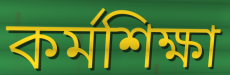
কর্মশিক্ষা